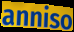
anniso